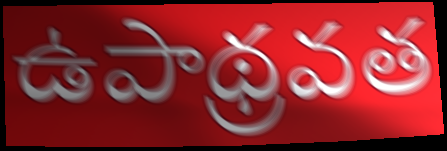
ఉపాథ్రవత